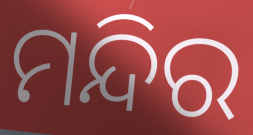
ମନ୍ଦିର